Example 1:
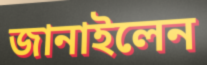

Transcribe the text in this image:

জানাইলেন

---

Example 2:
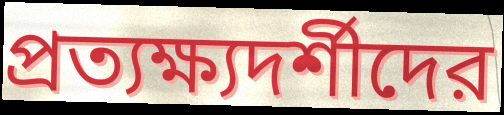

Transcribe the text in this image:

প্রত্যক্ষ্যদর্শীদের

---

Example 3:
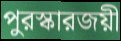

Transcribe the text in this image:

পুরস্কারজয়ী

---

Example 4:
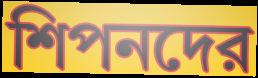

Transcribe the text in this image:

শিপনদের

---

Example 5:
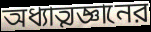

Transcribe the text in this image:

অধ্যাত্মজ্ঞানের